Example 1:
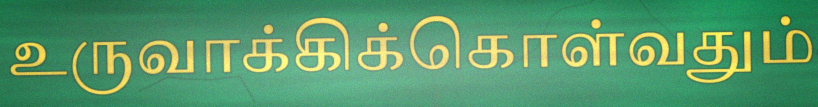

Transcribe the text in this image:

உருவாக்கிக்கொள்வதும்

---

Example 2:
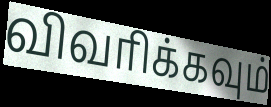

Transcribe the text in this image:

விவரிக்கவும்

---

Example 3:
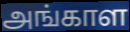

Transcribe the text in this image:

அங்காள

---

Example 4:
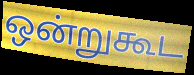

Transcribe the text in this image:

ஒன்றுகூட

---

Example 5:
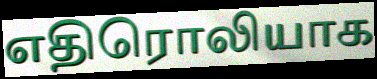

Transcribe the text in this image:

எதிரொலியாக